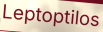
Leptoptilos